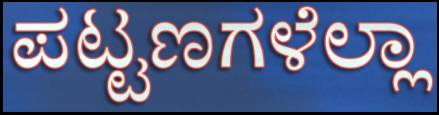
ಪಟ್ಟಣಗಳೆಲ್ಲಾ